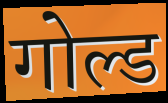
गोल्ड